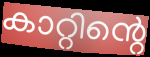
കാറ്റിന്റെ